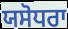
ਯਸੋਧਰਾ